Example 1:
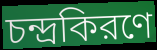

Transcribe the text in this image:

চন্দ্রকিরণে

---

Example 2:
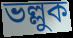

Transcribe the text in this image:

ভল্লুক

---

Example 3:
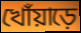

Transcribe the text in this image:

খোঁয়াড়ে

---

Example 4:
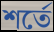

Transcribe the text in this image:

শর্তে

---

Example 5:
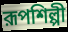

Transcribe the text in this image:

রূপশিল্পী